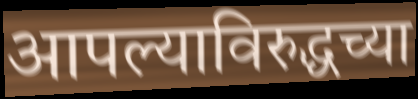
आपल्याविरुद्धच्या